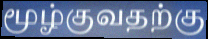
மூழ்குவதற்கு